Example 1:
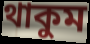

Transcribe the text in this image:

থাকুম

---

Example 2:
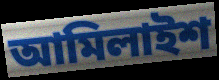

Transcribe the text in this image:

আমিলাইশ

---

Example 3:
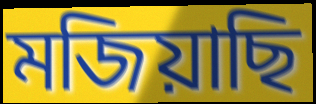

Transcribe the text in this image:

মজিয়াছি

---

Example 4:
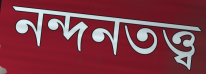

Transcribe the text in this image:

নন্দনতত্ত্ব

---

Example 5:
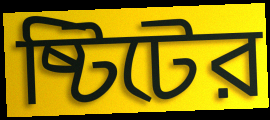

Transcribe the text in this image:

ষ্টিটের